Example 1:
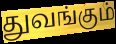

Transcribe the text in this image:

துவங்கும்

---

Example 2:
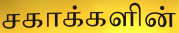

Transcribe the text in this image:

சகாக்களின்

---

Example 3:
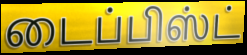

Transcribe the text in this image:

டைப்பிஸ்ட்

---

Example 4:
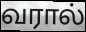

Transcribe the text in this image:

வரால்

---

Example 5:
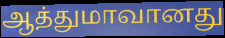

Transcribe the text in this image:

ஆத்துமாவானது